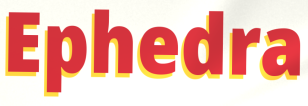
Ephedra